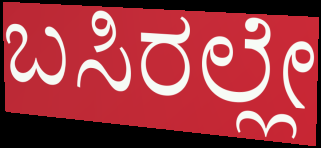
ಬಸಿರಲ್ಲೇ